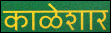
काळेशार